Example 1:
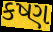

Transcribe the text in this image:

કષ્ણ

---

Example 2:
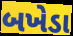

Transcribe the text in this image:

બખેડા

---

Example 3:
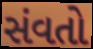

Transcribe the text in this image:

સંવતો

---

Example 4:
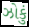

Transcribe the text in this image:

ઝોકું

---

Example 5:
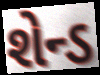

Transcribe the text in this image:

શેન્ડ